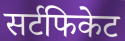
सर्टफिकेट